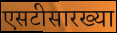
एसटीसारख्या